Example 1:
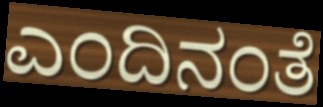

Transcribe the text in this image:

ಎಂದಿನಂತೆ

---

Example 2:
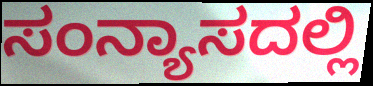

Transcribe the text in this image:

ಸಂನ್ಯಾಸದಲ್ಲಿ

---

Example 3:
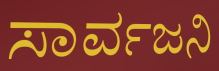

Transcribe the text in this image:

ಸಾರ್ವಜನಿ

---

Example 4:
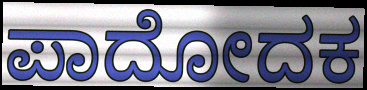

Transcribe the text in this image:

ಪಾದೋದಕ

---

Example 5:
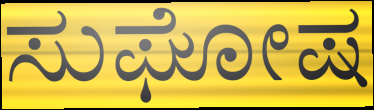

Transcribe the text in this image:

ಸುಘೋಷ